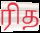
ரித